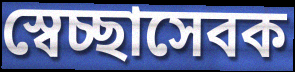
স্বেচ্ছাসেবক